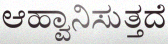
ಆಹ್ವಾನಿಸುತ್ತದೆ